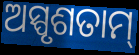
ଅସ୍ପୃଶତାମ୍